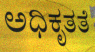
ಅಧಿಕೃತತೆ